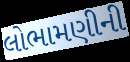
લોભામણીની